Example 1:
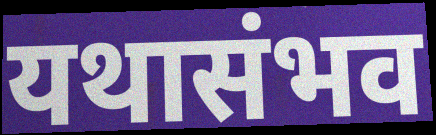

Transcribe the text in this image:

यथासंभव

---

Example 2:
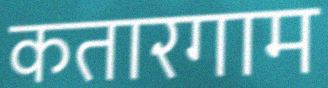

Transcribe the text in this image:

कतारगाम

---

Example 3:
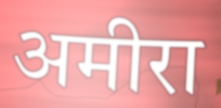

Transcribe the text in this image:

अमीरा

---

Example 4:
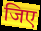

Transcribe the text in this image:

जिए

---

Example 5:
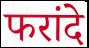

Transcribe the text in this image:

फरांदे